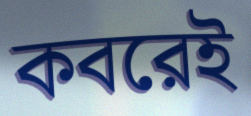
কবরেই